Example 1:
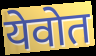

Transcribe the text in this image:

येवोत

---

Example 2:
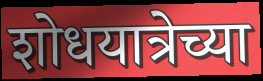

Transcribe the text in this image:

शोधयात्रेच्या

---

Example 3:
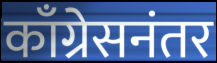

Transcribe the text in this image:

काँग्रेसनंतर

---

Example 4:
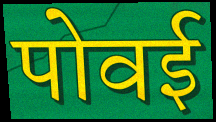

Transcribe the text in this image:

पोवई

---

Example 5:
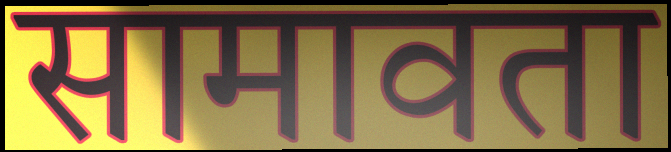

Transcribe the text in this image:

सामावता